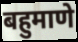
बहुमाणे